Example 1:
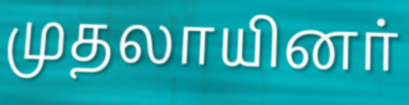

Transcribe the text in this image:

முதலாயினர்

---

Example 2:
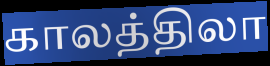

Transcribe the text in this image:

காலத்திலா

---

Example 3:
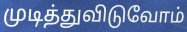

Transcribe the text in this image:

முடித்துவிடுவோம்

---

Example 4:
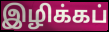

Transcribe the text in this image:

இழிக்கப்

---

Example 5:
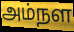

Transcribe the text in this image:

அம்நள